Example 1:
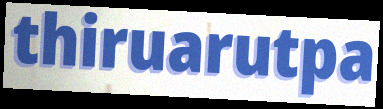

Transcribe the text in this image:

thiruarutpa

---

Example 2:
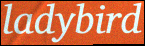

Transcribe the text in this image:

ladybird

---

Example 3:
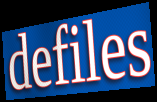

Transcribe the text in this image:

defiles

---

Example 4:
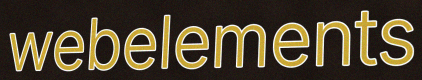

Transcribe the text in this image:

webelements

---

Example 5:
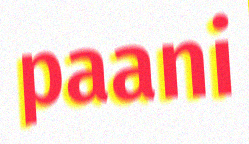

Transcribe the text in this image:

paani